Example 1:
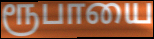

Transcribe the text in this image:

ரூபாயை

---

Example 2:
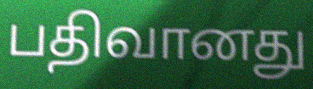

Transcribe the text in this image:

பதிவானது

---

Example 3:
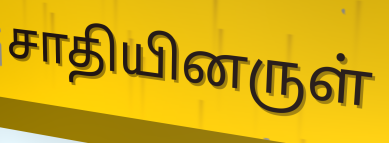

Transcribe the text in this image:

சாதியினருள்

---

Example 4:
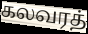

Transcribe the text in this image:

கலவரத்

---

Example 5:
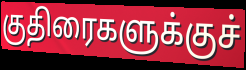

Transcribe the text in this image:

குதிரைகளுக்குச்